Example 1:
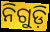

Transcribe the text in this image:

ନିଗୁଡ଼ି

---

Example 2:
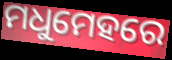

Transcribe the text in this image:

ମଧୁମେହରେ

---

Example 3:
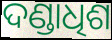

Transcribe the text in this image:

ଦଣ୍ଡାଧିଶ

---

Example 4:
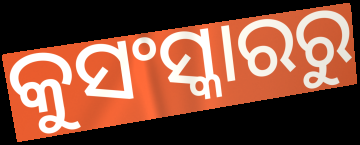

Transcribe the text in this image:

କୁସଂସ୍କାରରୁ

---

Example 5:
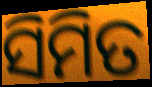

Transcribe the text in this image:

ସିମିତ